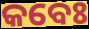
କବେଃ